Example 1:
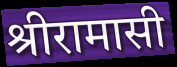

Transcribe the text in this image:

श्रीरामासी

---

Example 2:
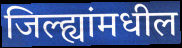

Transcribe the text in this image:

जिल्ह्यांमधील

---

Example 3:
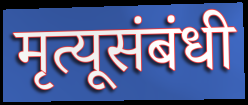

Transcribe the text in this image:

मृत्यूसंबंधी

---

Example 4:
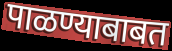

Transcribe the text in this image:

पाळण्याबाबत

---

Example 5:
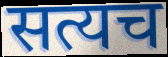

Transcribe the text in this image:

सत्यच